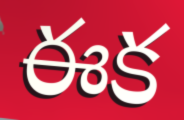
ఈక